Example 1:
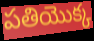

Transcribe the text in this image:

పతియొక్క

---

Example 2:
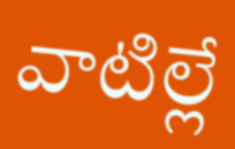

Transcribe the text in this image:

వాటిల్లే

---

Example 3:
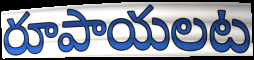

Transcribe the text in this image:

రూపాయలట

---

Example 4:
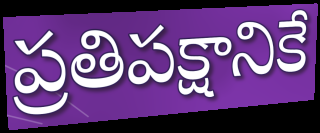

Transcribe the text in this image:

ప్రతిపక్షానికే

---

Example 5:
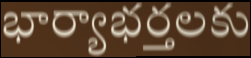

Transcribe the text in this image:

భార్యాభర్తలకు